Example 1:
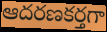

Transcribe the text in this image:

ఆదరణకర్తగా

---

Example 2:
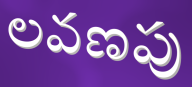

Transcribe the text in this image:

లవణపు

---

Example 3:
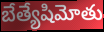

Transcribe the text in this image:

బేత్యేషిమోతు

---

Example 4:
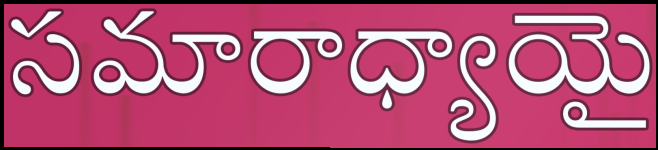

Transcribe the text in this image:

సమారాధ్యాయై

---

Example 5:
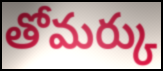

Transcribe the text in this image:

తోమర్కు